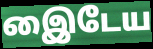
இைடேய